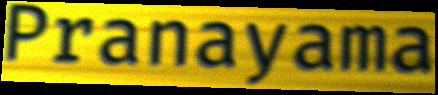
Pranayama